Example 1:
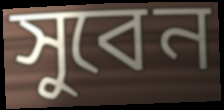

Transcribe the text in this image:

সুবেন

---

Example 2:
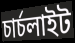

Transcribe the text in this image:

চাৰ্চলাইট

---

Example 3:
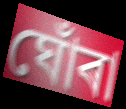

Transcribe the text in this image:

ঘোঁৰা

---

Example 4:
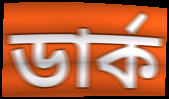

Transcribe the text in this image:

ডাৰ্ক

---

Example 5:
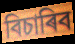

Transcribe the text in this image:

বিচাৰিব